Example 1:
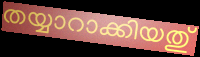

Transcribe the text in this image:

തയ്യാറാക്കിയതു്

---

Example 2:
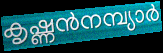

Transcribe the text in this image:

കൃഷ്ണൻനമ്പ്യാർ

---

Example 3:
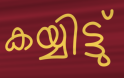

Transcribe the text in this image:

കയ്യിട്ടു്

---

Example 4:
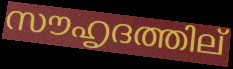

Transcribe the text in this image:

സൗഹൃദത്തില്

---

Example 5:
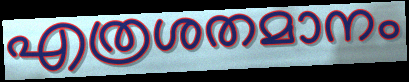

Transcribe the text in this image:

എത്രശതമാനം